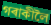
গৰাকীলৈ